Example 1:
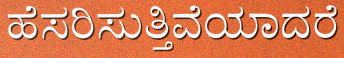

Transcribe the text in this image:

ಹೆಸರಿಸುತ್ತಿವೆಯಾದರೆ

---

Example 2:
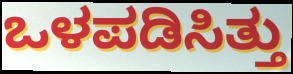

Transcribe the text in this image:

ಒಳಪಡಿಸಿತ್ತು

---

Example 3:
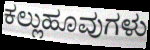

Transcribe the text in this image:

ಕಲ್ಲುಹೂವುಗಳು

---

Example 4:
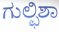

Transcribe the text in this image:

ಗುಲ್ಫಿಶಾ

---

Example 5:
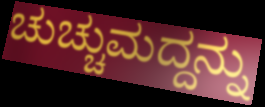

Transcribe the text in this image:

ಚುಚ್ಚುಮದ್ದನ್ನು